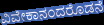
ವಿವೇಕಾನಂದರೊಡನೆ